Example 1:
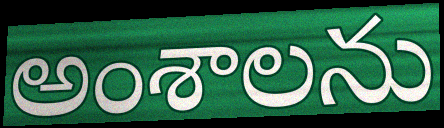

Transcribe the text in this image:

అంశాలను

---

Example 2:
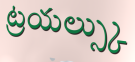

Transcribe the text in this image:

ట్రయల్స్కు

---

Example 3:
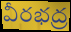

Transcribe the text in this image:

వీరభద్ర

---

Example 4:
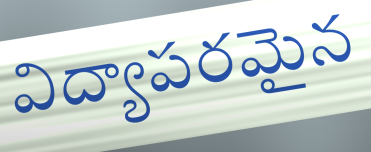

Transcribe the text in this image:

విద్యాపరమైన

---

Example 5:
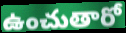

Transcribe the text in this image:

ఉంచుతారో